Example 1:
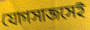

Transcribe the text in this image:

যোগসাজসেই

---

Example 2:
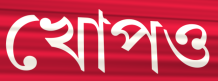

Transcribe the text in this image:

খোপও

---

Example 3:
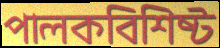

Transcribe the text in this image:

পালকবিশিষ্ট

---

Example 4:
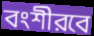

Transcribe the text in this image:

বংশীরবে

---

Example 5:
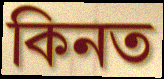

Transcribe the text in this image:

কিনত